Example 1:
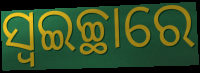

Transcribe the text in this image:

ସ୍ଵଇଚ୍ଛାରେ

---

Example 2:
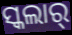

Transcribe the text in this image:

ସ୍କଲାର୍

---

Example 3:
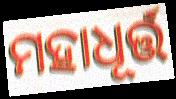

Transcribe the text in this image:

ମହାଧୂର୍ତ୍ତ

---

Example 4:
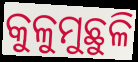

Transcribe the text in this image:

କୁଳୁମୁଛୁଳି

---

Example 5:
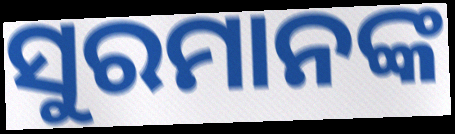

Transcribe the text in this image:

ସୁରମାନଙ୍କ